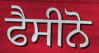
ਫੈਸੀਨੋ